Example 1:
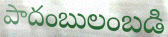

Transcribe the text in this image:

పాదంబులంబడి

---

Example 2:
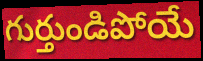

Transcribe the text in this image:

గుర్తుండిపోయే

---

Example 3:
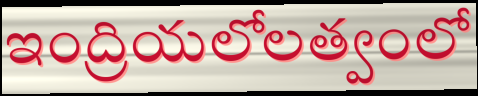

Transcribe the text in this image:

ఇంద్రియలోలత్వంలో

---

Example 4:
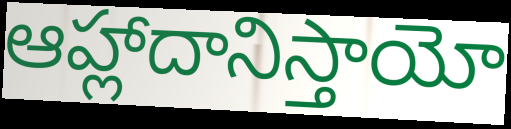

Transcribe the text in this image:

ఆహ్లాదానిస్తాయో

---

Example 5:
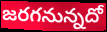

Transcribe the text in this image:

జరగనున్నదో